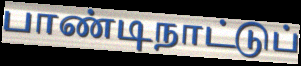
பாண்டிநாட்டுப்